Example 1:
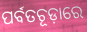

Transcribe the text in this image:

ପର୍ବତଚୂଡ଼ାରେ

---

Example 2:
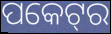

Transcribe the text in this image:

ପକେଟ୍‌ର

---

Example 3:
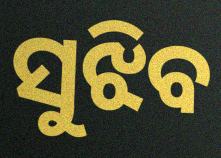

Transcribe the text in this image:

ସୁଝିବ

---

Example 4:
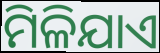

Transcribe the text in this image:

ମିଳିଯାଏ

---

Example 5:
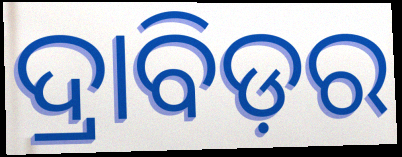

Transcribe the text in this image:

ଦ୍ରାବିଡ଼ର